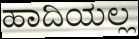
ಹಾದಿಯಲ್ಲ